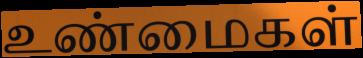
உண்மைகள்